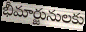
భీమార్జునులకు